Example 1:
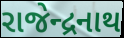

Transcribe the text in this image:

રાજેન્દ્રનાથ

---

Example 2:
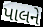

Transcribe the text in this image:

પાલને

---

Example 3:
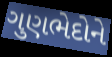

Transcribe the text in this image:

ગુણભેદોને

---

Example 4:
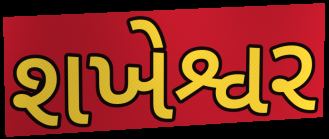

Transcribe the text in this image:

શખેશ્વર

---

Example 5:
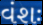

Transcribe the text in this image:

વંશઃ